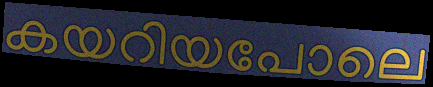
കയറിയപോലെ